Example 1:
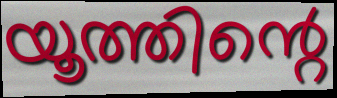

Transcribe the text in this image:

യൂത്തിന്റെ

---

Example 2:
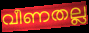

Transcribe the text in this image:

വീണതല്ല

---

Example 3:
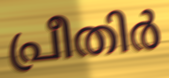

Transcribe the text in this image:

പ്രീതിർ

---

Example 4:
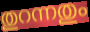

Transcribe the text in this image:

തുറന്നതും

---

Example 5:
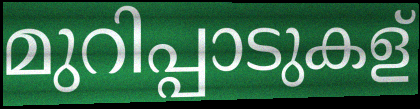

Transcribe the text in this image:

മുറിപ്പാടുകള്